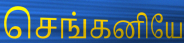
செங்கனியே